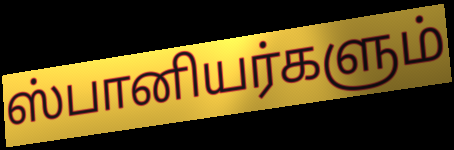
ஸ்பானியர்களும்